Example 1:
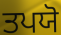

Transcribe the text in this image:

ਤਪਯੋ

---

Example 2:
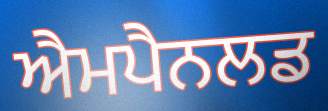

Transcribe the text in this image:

ਐਮਪੈਨਲਡ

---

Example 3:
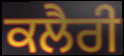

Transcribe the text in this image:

ਕਲੈਰੀ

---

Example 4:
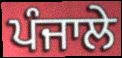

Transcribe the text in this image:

ਪੰਜਾਲੇ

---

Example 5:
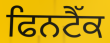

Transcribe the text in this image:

ਫਿਨਟੈੱਕ